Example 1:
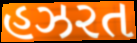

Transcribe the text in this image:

હઝરત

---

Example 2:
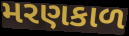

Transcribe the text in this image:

મરણકાળ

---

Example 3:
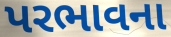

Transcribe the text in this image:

પરભાવના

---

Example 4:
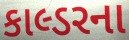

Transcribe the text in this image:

કાલ્ડરના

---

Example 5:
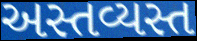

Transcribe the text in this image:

અસ્તવ્યસ્ત